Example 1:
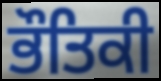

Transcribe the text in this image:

ਭੌਤਿਕੀ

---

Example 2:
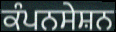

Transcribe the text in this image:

ਕੰਪਨਸੇਸ਼ਨ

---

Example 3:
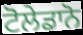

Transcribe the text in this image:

ਟੋਲੇਡਾਨੋ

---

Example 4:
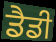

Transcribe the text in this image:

ਡੈਡੀ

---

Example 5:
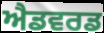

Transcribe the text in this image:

ਐਡਵਰਡ